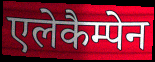
एलेकैम्पेन